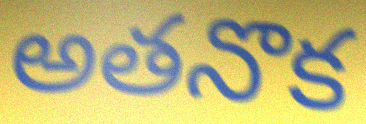
అతనొక